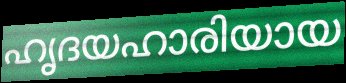
ഹൃദയഹാരിയായ